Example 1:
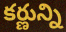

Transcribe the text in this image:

కర్ణున్ని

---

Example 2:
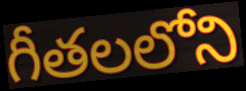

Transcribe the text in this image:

గీతలలోని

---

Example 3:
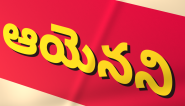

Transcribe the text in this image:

ఆయెనని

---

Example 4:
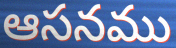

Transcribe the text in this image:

ఆసనము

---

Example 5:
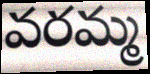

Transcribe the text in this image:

వరమ్మ